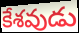
కేశవుడు